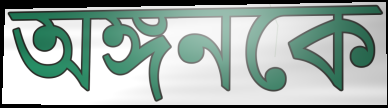
অঙ্গনকে